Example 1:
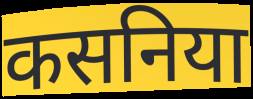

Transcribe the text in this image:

कसनिया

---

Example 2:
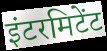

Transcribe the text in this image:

इंटरमिटेंट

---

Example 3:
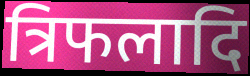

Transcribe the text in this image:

त्रिफलादि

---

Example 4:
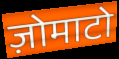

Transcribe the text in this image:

ज़ोमाटो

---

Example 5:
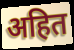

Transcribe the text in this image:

अहित